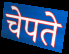
चेपते